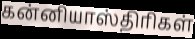
கன்னியாஸ்திரிகள்